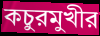
কচুরমুখীর